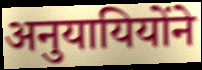
अनुयायियोंने